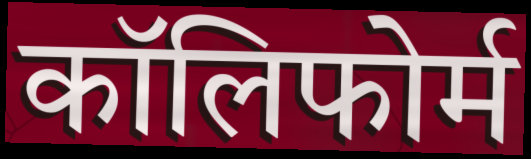
कॉलिफोर्म